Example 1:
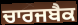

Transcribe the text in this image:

ਚਾਰਜਬੈਕ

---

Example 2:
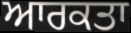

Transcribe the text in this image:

ਆਰਕਤਾ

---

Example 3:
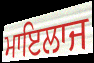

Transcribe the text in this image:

ਮਾਇਲਾਜ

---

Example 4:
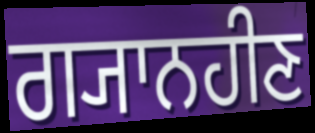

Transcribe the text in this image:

ਗ੍ਯਾਨਹੀਣ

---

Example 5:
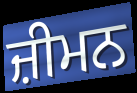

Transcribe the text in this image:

ਜ਼ੀਮਨ